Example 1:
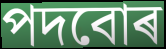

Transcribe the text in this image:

পদবোৰ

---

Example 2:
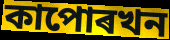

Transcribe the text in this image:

কাপোৰখন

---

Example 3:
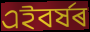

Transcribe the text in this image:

এইবৰ্ষৰ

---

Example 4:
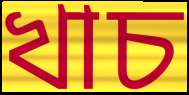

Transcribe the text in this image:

খাচ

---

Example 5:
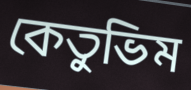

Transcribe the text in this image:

কেতুভিম